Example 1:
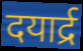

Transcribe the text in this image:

दयार्द्र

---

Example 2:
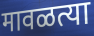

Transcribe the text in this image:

मावळत्या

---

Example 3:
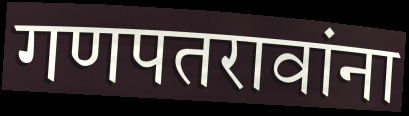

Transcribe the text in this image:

गणपतरावांना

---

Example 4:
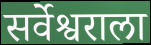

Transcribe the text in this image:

सर्वेश्वराला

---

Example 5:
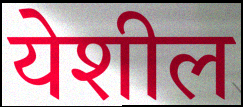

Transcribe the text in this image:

येशील